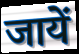
जायें